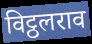
विट्ठलराव